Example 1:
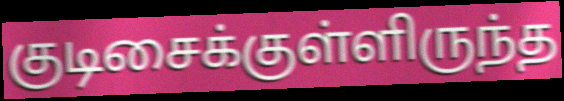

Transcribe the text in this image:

குடிசைக்குள்ளிருந்த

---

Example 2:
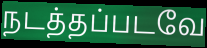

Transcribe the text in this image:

நடத்தப்படவே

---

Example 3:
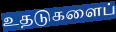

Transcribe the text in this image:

உதடுகளைப்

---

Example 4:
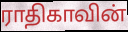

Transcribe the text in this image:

ராதிகாவின்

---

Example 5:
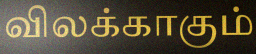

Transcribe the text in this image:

விலக்காகும்